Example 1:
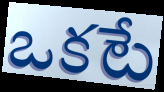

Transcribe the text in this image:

ఒకటే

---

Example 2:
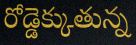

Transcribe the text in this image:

రోడ్డెక్కుతున్న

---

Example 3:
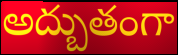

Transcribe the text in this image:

అద్బుతంగా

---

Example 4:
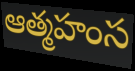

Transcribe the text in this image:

ఆత్మహంస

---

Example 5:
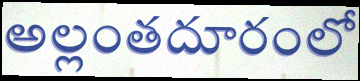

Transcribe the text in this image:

అల్లంతదూరంలో